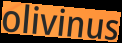
olivinus